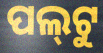
ପଲ୍‍ଟୁ